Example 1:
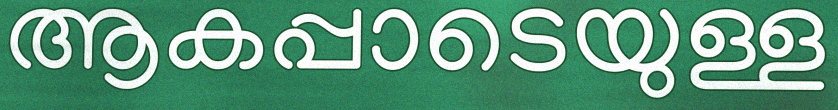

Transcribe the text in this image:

ആകപ്പാടെയുള്ള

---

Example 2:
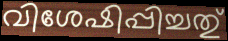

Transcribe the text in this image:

വിശേഷിപ്പിച്ചതു്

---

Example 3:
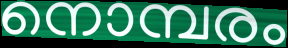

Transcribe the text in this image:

നൊമ്പരം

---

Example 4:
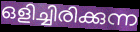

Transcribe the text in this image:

ഒളിച്ചിരിക്കുന്ന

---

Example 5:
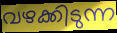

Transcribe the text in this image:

വഴക്കിടുന്ന